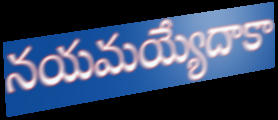
నయమయ్యేదాకా